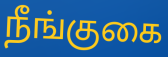
நீங்குகை